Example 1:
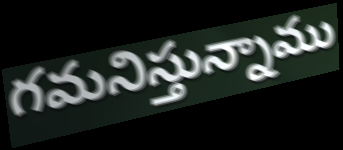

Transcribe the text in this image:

గమనిస్తున్నాము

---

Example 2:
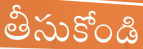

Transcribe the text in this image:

తీసుకోండి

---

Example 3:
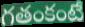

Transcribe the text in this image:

గతంకంటే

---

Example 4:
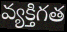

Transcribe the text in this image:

వ్యక్తిగత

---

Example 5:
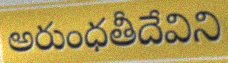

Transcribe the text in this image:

అరుంధతీదేవిని